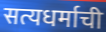
सत्यधर्माची